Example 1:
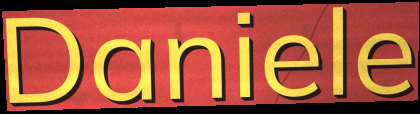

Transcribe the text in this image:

Daniele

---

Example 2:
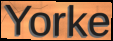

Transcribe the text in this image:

Yorke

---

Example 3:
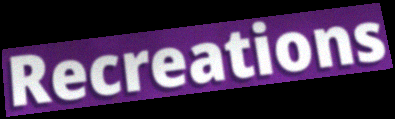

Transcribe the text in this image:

Recreations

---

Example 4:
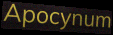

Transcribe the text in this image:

Apocynum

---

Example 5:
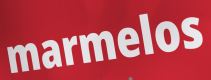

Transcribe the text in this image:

marmelos